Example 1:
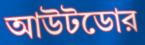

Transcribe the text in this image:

আউটডোর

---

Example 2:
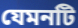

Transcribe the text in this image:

যেমনটি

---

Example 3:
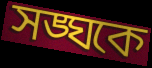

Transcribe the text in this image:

সঙ্ঘকে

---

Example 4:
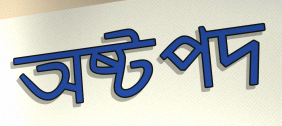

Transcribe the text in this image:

অষ্টপদ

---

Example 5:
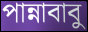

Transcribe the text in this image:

পান্নাবাবু